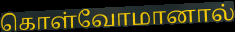
கொள்வோமானால்